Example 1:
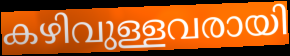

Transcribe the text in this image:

കഴിവുള്ളവരായി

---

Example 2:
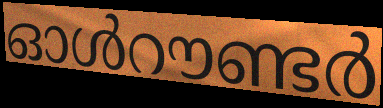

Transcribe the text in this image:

ഓൾറൗണ്ടർ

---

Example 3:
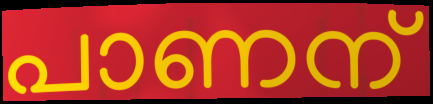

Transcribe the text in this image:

പാണന്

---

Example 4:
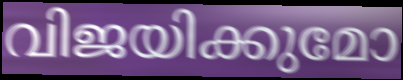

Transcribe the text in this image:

വിജയിക്കുമോ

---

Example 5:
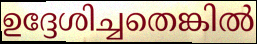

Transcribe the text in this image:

ഉദ്ദേശിച്ചതെങ്കിൽ